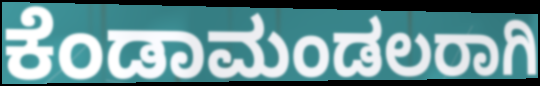
ಕೆಂಡಾಮಂಡಲರಾಗಿ